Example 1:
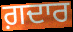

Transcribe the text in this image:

ਗ਼ਦਾਰ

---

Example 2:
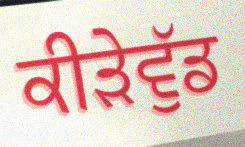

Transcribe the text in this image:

ਕੀੜੇਵੁੱਡ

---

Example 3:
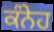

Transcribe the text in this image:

ਕੰਨੇਹ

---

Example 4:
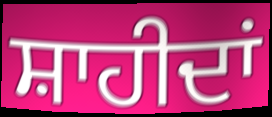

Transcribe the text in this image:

ਸ਼ਾਹੀਦਾਂ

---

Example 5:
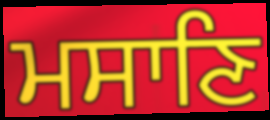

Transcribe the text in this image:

ਮਸਾਣਿ